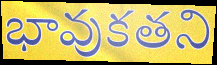
భావుకతని